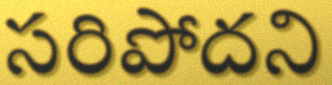
సరిపోదని